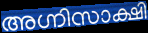
അഗ്നിസാക്ഷി